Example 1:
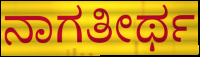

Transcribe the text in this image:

ನಾಗತೀರ್ಥ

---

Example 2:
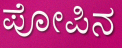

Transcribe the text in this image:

ಪೋಪಿನ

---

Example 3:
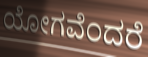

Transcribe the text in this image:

ಯೋಗವೆಂದರೆ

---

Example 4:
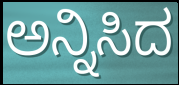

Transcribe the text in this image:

ಅನ್ನಿಸಿದ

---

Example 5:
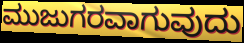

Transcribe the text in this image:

ಮುಜುಗರವಾಗುವುದು